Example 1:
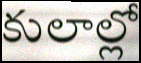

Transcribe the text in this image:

కులాల్లో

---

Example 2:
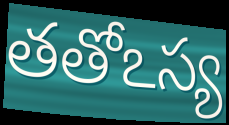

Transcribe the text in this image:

తతోఽస్య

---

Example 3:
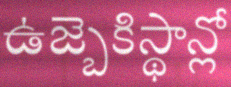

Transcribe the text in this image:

ఉజ్బెకిస్థాన్లో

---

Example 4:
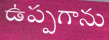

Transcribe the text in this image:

ఉప్పగాను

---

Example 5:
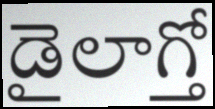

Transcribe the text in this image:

డైలాగ్తో